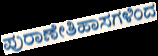
ಪುರಾಣೇತಿಹಾಸಗಳಿಂದ